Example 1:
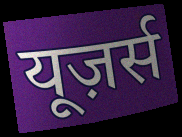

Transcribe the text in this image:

यूज़र्स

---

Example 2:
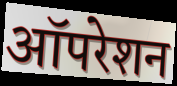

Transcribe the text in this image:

ऑपरेशन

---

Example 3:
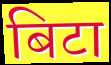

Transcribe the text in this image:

बिटा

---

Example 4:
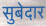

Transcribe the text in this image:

सुबेदार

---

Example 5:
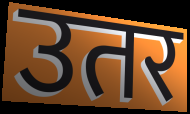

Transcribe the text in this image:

उतर